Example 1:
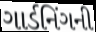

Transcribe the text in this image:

ગાર્ડનિંગની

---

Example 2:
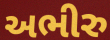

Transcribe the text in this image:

અભીરુ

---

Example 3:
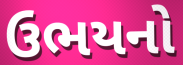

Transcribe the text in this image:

ઉભયનો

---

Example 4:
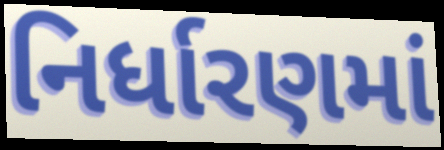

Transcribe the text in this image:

નિર્ધારણમાં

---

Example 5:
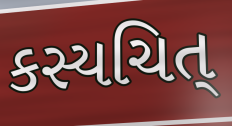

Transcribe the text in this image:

કસ્યચિત્